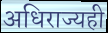
अधिराज्यही